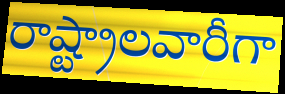
రాష్ట్రాలవారీగా